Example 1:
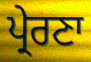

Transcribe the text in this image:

ਪ੍ਰੇਰਣਾ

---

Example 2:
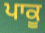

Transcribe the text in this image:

ਪਾਕੂ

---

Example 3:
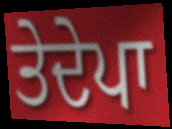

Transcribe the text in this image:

ਤੇਦੇਪਾ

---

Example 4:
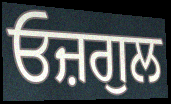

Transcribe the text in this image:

ਓਜ਼ਗੁਲ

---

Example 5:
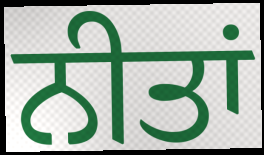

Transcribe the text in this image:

ਨੀਤਾਂ